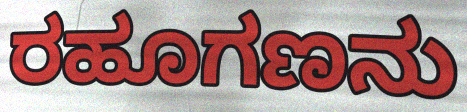
ರಹೂಗಣನು